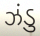
ઝંડુ